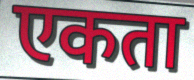
एकता